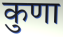
कुणा